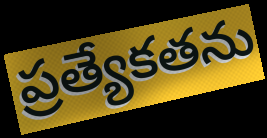
ప్రత్యేకతను